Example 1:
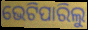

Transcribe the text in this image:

ଭେଟିପାରିଲୁ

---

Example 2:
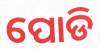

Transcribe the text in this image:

ପୋଡି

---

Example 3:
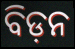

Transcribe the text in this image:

ବିଡ଼ନ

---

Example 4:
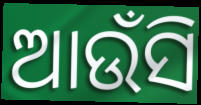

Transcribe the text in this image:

ଆଉଁସି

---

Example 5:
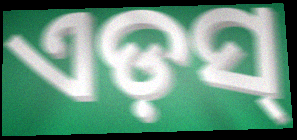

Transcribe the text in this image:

ଏଡ଼ସ୍